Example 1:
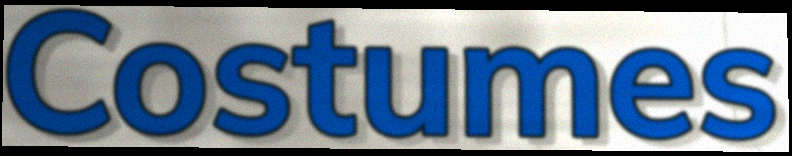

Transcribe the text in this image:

Costumes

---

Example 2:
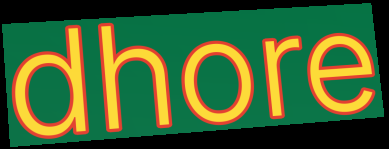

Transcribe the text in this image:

dhore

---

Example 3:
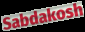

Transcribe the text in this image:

Sabdakosh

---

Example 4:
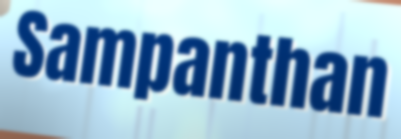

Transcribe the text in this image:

Sampanthan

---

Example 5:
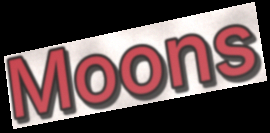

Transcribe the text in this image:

Moons